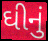
ઘીનું